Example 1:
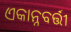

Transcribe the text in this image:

ଏକାନ୍ନବର୍ତ୍ତୀ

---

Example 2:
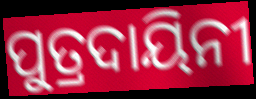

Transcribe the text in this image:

ପୁତ୍ରଦାୟିନୀ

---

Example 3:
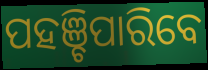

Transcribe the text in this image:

ପହଞ୍ଚିପାରିବେ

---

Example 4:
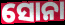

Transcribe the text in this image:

ସୋନା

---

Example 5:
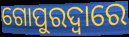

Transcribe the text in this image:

ଗୋପୁରଦ୍ଵାରେ